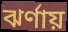
ঝর্ণায়